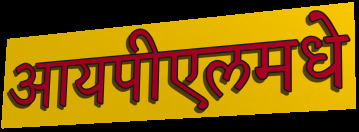
आयपीएलमधे